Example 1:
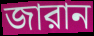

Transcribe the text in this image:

জারান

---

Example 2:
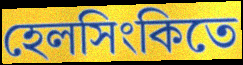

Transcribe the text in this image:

হেলসিংকিতে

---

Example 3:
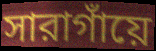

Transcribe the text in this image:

সারাগাঁয়ে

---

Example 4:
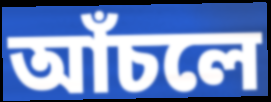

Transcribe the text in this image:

আঁচলে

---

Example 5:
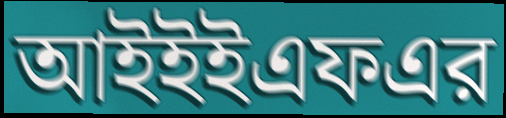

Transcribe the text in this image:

আইইইএফএর